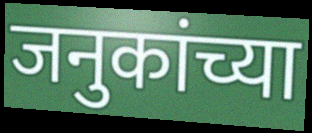
जनुकांच्या